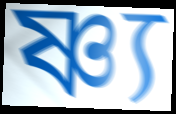
ষ্ণ্য